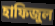
হাফিজুল